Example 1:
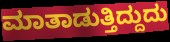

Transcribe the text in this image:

ಮಾತಾಡುತ್ತಿದ್ದುದು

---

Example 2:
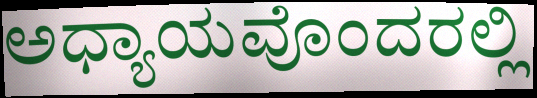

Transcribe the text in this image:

ಅಧ್ಯಾಯವೊಂದರಲ್ಲಿ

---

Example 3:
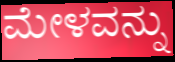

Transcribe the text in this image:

ಮೇಳವನ್ನು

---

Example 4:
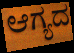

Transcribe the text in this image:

ಆಗ್ಯದ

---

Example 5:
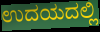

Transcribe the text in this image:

ಉದಯದಲ್ಲಿ